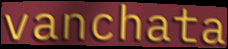
vanchata